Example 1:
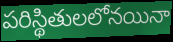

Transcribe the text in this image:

పరిస్థితులలోనయినా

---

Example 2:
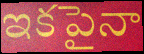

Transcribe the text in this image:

ఇకపైనా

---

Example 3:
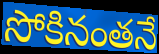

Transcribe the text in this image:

సోకినంతనే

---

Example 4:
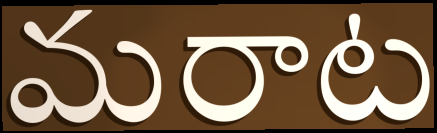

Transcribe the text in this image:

మరాట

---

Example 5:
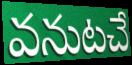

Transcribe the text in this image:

వనుటచే